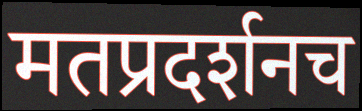
मतप्रदर्शनच